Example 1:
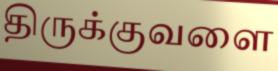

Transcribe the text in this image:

திருக்குவளை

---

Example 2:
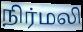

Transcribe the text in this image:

நிர்மலி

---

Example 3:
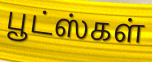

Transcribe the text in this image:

பூட்ஸ்கள்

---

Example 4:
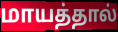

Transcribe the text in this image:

மாயத்தால்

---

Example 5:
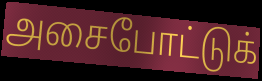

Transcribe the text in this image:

அசைபோட்டுக்